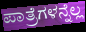
ಪಾತ್ರೆಗಳನ್ನೆಲ್ಲ